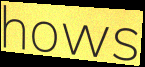
hows